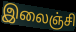
இலைஞ்சி